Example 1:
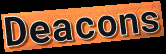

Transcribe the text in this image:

Deacons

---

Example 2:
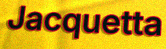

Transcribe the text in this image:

Jacquetta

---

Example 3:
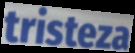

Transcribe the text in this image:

tristeza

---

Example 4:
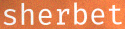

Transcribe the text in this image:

sherbet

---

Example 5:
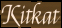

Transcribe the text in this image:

Kitkat